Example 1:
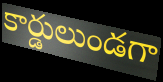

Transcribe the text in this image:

కార్డులుండగా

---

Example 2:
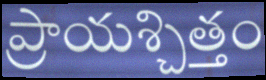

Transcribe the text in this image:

ప్రాయశ్చిత్తం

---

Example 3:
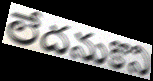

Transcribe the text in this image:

లేదనుకొని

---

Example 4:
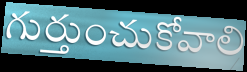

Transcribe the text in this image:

గుర్తుంచుకోవాలి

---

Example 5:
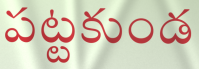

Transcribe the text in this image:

పట్టకుండ